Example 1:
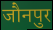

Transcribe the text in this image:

जौनपुर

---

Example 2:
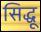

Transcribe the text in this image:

सिद्धू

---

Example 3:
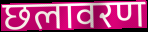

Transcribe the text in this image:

छलावरण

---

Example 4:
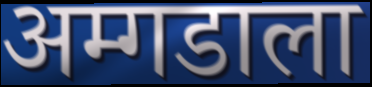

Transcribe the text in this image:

अम्गडाला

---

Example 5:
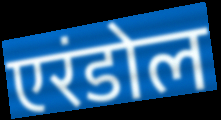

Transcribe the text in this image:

एरंडोल